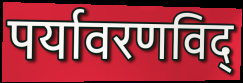
पर्यावरणविद्